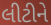
લીટીને